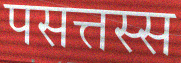
पसत्तस्स